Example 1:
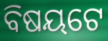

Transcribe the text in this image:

ବିଷୟଟେ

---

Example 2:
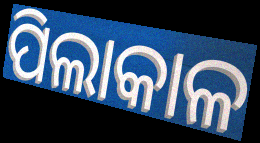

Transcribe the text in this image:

ପିଲାକାଳ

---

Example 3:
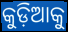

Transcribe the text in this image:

କୁଡ଼ିଆକୁ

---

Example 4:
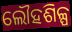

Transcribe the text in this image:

ଲୌହଶିଳ୍ପ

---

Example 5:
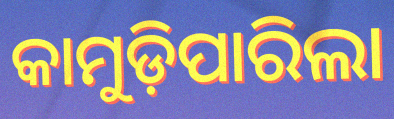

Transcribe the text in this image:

କାମୁଡ଼ିପାରିଲା